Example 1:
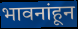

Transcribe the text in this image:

भावनांहून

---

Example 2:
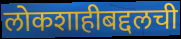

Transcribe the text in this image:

लोकशाहीबद्दलची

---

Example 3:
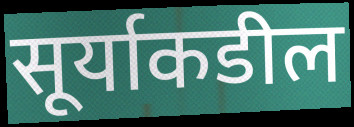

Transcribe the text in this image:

सूर्याकडील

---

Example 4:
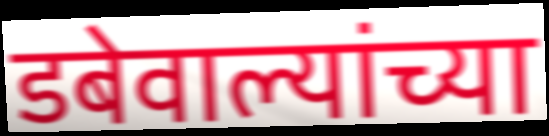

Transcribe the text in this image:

डबेवाल्यांच्या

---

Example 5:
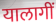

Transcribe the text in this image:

यालागीं